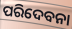
ପରିଦେବନା